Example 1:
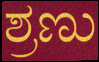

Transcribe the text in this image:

ಶ್ರಣು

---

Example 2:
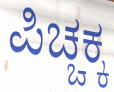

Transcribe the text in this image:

ಪಿಚ್ಚಕ್ಕ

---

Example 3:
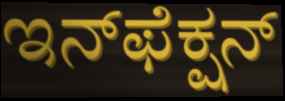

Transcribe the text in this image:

ಇನ್‌ಫೆಕ್ಷನ್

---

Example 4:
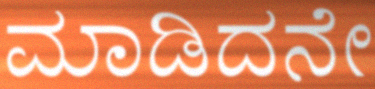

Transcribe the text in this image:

ಮಾಡಿದನೇ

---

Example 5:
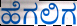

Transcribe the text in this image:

ಹೆಗಲಿಗ